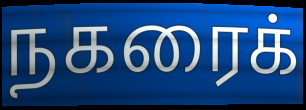
நகரைக்